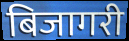
बिजागरी